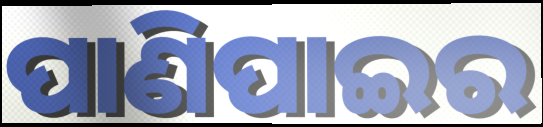
ପାଣିପାଇର